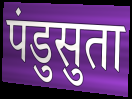
पंडुसुता